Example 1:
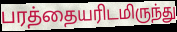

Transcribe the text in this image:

பரத்தையரிடமிருந்து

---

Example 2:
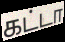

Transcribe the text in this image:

கட்டா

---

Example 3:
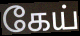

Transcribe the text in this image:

கேய்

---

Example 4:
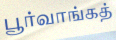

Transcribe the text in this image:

பூர்வாங்கத்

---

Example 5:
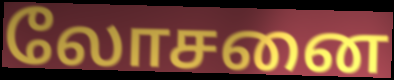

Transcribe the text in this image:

லோசனை